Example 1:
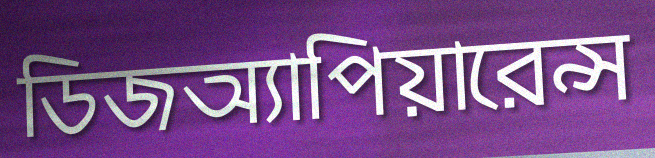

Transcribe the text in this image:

ডিজঅ্যাপিয়ারেন্স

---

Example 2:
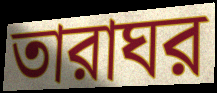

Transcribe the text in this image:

তারাঘর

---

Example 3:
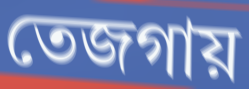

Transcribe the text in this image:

তেজগায়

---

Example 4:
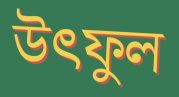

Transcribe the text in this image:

উৎফুল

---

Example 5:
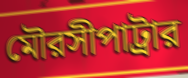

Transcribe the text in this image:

মৌরসীপাট্রার